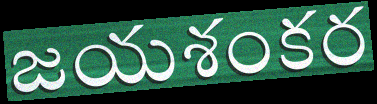
జయశంకర